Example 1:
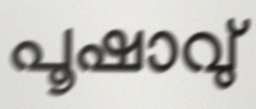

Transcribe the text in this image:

പൂഷാവു്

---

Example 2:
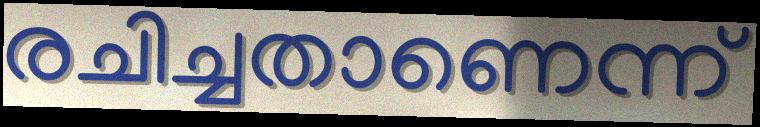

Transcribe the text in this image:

രചിച്ചതാണെന്ന്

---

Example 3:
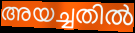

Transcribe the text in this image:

അയച്ചതിൽ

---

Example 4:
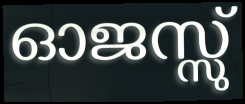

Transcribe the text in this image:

ഓജസ്സു്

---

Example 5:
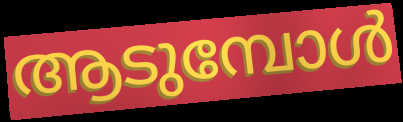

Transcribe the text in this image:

ആടുമ്പോൾ